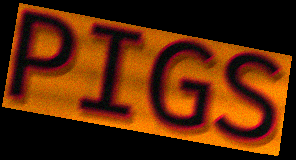
PIGS